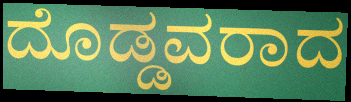
ದೊಡ್ಡವರಾದ